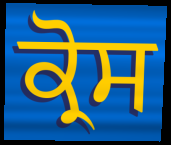
ਕ੍ਰੋਸ